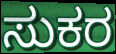
ಸುಕರ